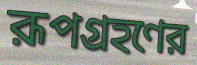
রূপগ্রহণের